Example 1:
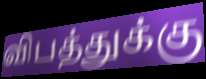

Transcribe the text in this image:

விபத்துக்கு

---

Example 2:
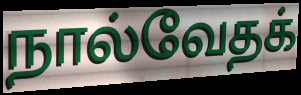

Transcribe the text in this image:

நால்வேதக்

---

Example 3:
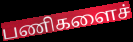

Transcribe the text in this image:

பணிகளைச்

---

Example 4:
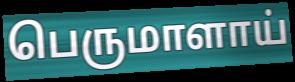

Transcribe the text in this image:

பெருமாளாய்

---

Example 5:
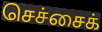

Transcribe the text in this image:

செச்சைக்